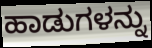
ಹಾಡುಗಳನ್ನು